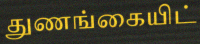
துணங்கையிட்